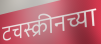
टचस्क्रीनच्या